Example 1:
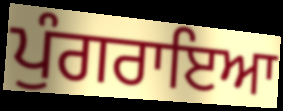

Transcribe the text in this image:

ਪੁੰਗਰਾਇਆ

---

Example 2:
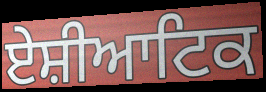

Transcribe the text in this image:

ਏਸ਼ੀਆਟਿਕ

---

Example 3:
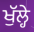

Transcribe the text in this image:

ਖੁੱਲ੍ਹੇ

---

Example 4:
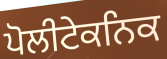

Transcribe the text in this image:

ਪੋਲੀਟੇਕਨਿਕ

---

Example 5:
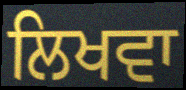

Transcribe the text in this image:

ਲਿਖਵਾ